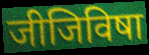
जीजिविषा